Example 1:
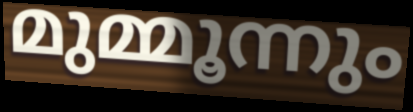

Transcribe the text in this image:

മുമ്മൂന്നും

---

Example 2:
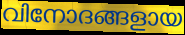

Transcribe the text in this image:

വിനോദങ്ങളായ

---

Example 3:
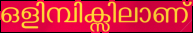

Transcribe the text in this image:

ഒളിമ്പിക്സിലാണ്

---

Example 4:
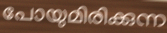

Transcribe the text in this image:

പോയുമിരിക്കുന്ന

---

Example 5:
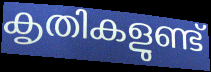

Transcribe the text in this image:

കൃതികളുണ്ട്